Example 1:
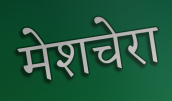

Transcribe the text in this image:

मेशचेरा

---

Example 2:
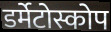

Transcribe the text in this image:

डर्मेटोस्कोप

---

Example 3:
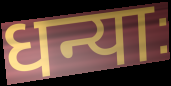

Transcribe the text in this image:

धन्याः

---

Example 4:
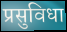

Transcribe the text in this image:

प्रसुविधा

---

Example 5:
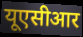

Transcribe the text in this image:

यूएसीआर